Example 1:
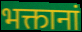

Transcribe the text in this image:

भक्तानां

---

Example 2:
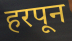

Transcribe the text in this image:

हरपून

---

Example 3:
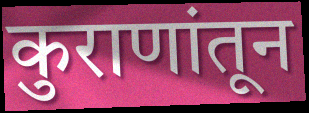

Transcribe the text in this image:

कुराणांतून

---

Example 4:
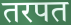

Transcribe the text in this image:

तरपत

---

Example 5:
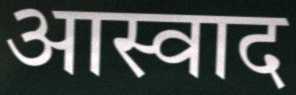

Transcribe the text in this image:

आस्वाद